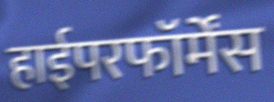
हाईपरफॉर्मेंस